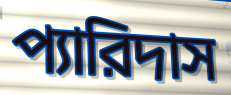
প্যারিদাস